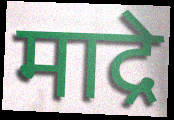
माद्रे